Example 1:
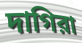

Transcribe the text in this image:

দাগিরা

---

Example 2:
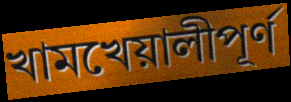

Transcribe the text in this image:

খামখেয়ালীপূর্ণ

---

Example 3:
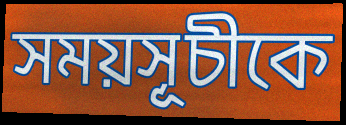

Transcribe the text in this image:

সময়সূচীকে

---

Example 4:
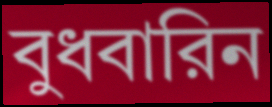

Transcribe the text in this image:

বুধবারিন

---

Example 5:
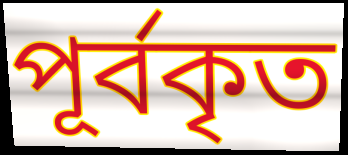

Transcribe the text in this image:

পূর্বকৃত